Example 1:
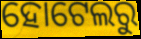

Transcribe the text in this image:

ହୋଟେଲରୁ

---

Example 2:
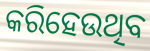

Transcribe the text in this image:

କରିହେଉଥିବ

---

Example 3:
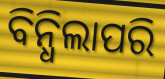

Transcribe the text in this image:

ବିନ୍ଧିଲାପରି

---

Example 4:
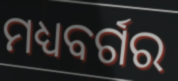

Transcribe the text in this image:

ମଧ୍ୟବର୍ଗର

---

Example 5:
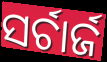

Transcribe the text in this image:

ସର୍ଚାର୍ଜ